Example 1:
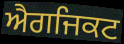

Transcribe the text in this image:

ਐਗਜਿਕਟ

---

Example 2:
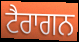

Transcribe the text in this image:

ਟੈਰਾਗਨ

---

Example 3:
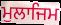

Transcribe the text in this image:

ਮੁਲਾਜਿਮ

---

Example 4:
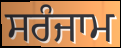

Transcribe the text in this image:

ਸਰੰਜਾਮ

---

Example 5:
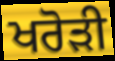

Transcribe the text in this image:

ਖਰੋੜੀ